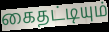
கைதட்டியும்